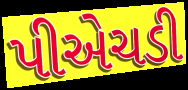
પીએચડી